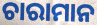
ଚାରାମାନ